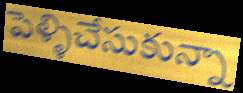
పెళ్ళిచేసుకున్నా